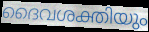
ദൈവശക്തിയും